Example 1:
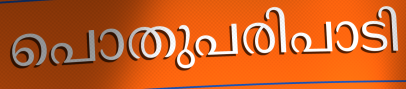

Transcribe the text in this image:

പൊതുപരിപാടി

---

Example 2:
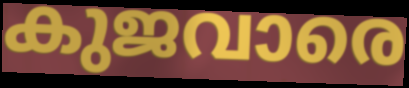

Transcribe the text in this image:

കുജവാരെ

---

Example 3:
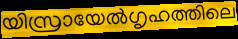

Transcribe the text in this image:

യിസ്രായേൽഗൃഹത്തിലെ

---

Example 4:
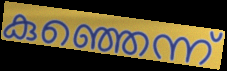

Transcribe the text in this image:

കുഞ്ഞെന്ന്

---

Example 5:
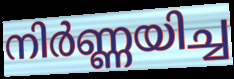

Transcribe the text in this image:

നിർണ്ണയിച്ച